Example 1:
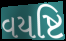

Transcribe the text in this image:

વયષ્ટિ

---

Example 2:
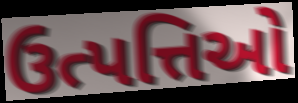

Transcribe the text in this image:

ઉત્પત્તિઓ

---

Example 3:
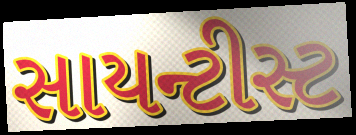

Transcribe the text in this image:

સાયન્ટીસ્ટ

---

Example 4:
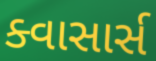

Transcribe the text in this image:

ક્વાસાર્સ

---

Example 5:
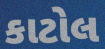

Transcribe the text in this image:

કાટોલ